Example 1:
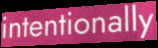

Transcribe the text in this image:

intentionally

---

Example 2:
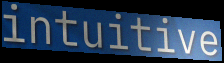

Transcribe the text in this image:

intuitive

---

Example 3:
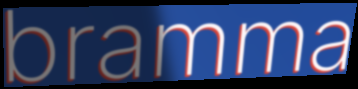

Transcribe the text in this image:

bramma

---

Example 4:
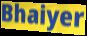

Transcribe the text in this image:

Bhaiyer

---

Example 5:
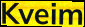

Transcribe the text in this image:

Kveim